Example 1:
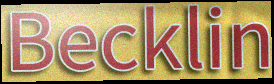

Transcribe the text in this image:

Becklin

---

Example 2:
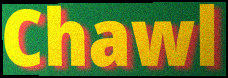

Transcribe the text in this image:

Chawl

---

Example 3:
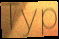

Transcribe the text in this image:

Typ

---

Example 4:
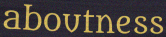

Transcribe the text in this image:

aboutness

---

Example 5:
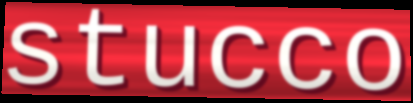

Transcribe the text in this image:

stucco